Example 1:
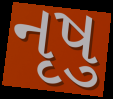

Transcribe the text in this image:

નૃષુ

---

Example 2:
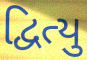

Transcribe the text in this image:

દ્વિત્યુ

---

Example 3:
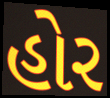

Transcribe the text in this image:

હોર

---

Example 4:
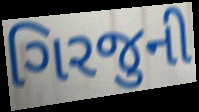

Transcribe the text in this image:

ગિરજુની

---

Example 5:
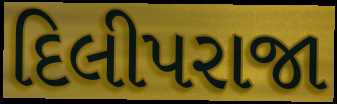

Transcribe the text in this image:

દિલીપરાજા